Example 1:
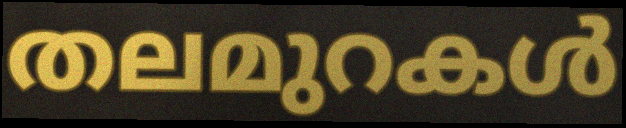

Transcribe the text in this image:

തലമുറകൾ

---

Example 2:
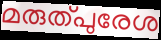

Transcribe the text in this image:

മരുത്പുരേശ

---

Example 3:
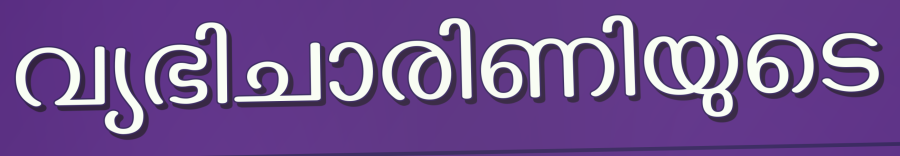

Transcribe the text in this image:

വ്യഭിചാരിണിയുടെ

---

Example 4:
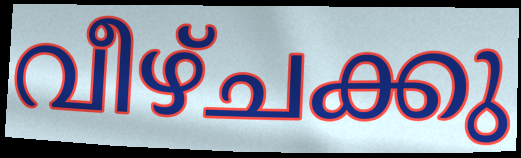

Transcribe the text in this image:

വീഴ്ചക്കു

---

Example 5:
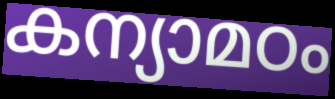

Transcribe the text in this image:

കന്യാമഠം